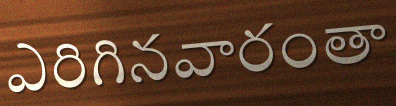
ఎరిగినవారంతా